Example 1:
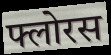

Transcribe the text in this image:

फ्लोरस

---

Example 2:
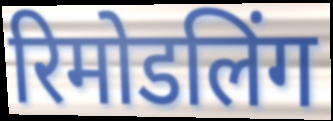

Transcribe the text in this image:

रिमोडलिंग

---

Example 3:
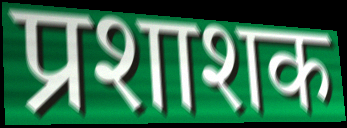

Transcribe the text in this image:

प्रशाशक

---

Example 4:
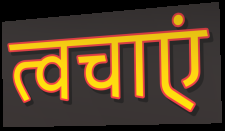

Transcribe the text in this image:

त्वचाएं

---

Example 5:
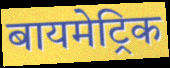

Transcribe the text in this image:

बायमेट्रिक